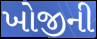
ખોજીની